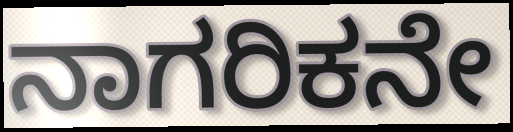
ನಾಗರಿಕನೇ